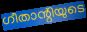
ഗീതാന്റിയുടെ